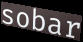
sobar